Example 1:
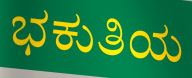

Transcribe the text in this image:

ಭಕುತಿಯ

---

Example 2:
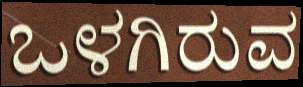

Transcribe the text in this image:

ಒಳಗಿರುವ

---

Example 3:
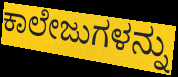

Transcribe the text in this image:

ಕಾಲೇಜುಗಳನ್ನು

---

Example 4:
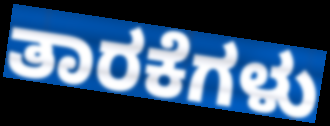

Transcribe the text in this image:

ತಾರಕೆಗಳು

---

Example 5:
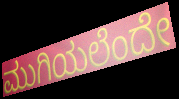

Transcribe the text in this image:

ಮುಗಿಯಲೆಂದೇ